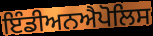
ਇੰਡੀਅਨਐਪੋਲਿਸ